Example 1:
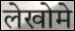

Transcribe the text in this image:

लेखोमे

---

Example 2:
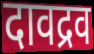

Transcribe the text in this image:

दावद्रव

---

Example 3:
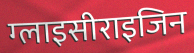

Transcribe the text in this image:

ग्लाइसीराइजिन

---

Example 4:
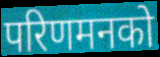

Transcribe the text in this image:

परिणमनको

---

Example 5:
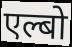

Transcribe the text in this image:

एल्बो